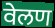
वेलण